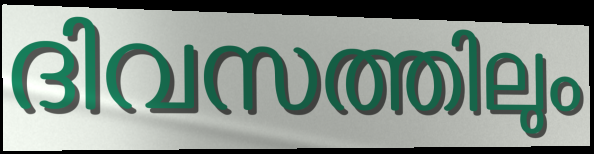
ദിവസത്തിലും